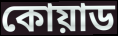
কোয়াড